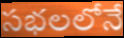
సభలలోనే